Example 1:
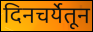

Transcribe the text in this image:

दिनचर्येतून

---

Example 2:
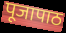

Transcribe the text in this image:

पूजापाठ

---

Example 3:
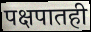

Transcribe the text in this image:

पक्षपातही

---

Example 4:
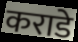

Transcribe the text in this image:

कराडे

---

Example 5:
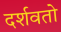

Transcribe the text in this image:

दर्शवतो